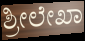
ಶ್ರೀಲೇಖಾ